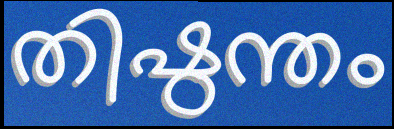
തിഷ്ഠന്തം